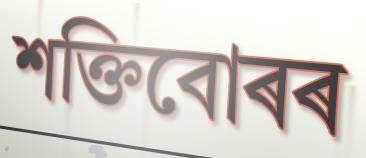
শক্তিবোৰৰ